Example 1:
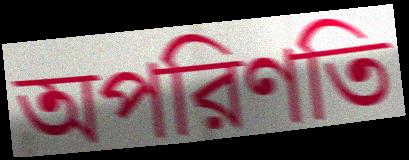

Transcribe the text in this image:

অপরিণতি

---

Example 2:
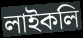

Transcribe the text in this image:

লাইকলি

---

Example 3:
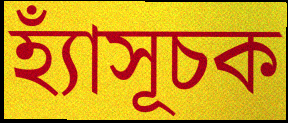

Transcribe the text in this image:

হ্যাঁসূচক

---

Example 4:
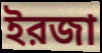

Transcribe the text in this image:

ইরজা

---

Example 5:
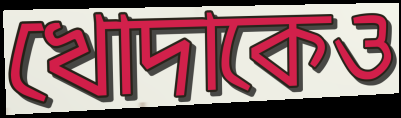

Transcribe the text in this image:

খোদাকেও